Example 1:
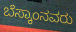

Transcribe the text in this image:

ಬೆಸ್ಕಾಂನವರು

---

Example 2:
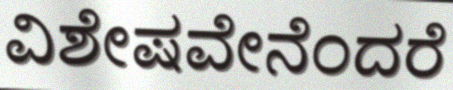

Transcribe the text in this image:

ವಿಶೇಷವೇನೆಂದರೆ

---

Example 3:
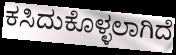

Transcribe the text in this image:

ಕಸಿದುಕೊಳ್ಳಲಾಗಿದೆ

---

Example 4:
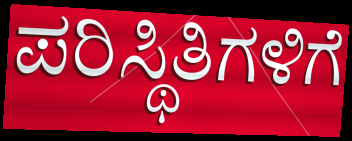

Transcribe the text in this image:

ಪರಿಸ್ಥಿತಿಗಳಿಗೆ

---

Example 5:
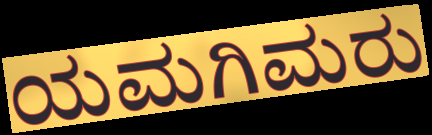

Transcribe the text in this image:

ಯಮಗಿಮರು